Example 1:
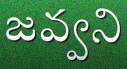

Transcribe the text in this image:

జవ్వని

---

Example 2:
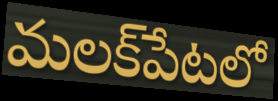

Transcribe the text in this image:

మలక్‌పేటలో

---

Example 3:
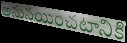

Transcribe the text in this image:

అనునయించటానికి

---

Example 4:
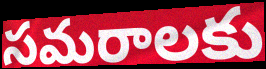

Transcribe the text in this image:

సమరాలకు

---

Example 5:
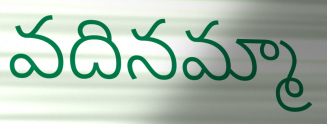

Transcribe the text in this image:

వదినమ్మా